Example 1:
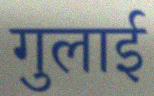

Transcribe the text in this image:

गुलाई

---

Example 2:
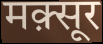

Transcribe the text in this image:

मक़्सूर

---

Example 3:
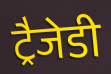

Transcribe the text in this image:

ट्रैजेडी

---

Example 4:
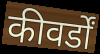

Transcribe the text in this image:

कीवर्डों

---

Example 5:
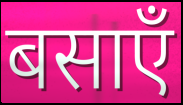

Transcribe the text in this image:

बसाएँ